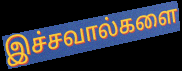
இச்சவால்களை